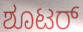
ಶೂಟರ್